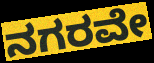
ನಗರವೇ